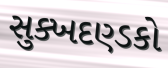
સુક્ખદણ્ડકો